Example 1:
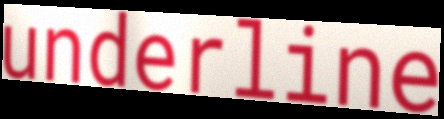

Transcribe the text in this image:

underline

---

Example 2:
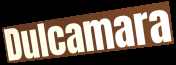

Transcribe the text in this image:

Dulcamara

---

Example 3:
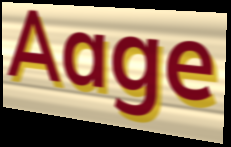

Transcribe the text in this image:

Aage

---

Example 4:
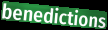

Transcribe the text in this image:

benedictions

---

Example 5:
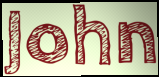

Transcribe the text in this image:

John